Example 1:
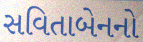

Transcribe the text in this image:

સવિતાબેનનો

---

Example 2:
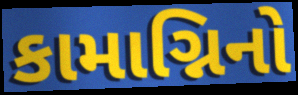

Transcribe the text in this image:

કામાગ્નિનો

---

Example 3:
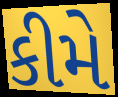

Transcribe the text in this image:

કીમે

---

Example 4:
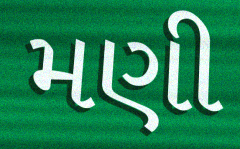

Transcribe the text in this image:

મણી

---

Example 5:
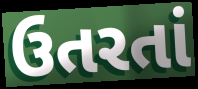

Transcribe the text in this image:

ઉતરતાં